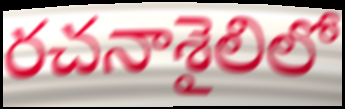
రచనాశైలిలో